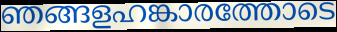
ഞങ്ങളഹങ്കാരത്തോടെ